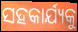
ସହକାର୍ଯ୍ୟକୁ